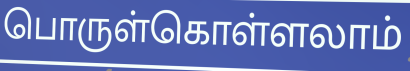
பொருள்கொள்ளலாம்